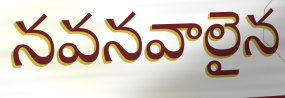
నవనవాలైన